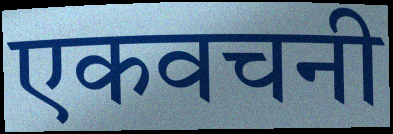
एकवचनी